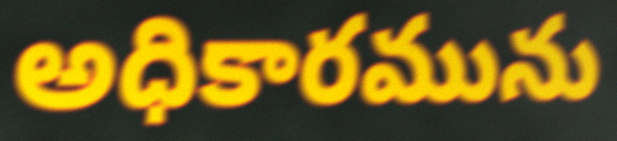
అధికారమును